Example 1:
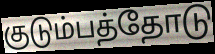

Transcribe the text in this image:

குடும்பத்தோடு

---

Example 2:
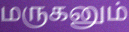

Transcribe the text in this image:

மருகனும்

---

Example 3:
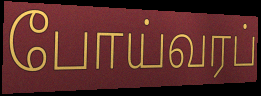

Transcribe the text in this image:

போய்வரப்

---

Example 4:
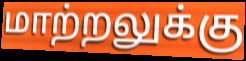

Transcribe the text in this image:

மாற்றலுக்கு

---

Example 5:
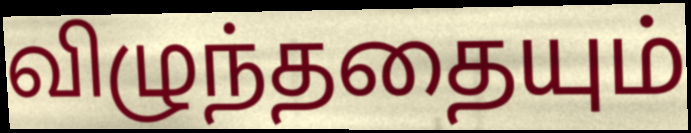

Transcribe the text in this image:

விழுந்ததையும்